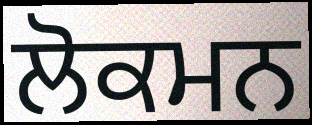
ਲੋਕਮਨ